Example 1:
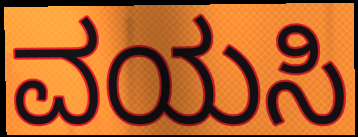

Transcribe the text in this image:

ವಯಸಿ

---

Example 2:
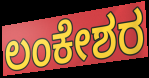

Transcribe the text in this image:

ಲಂಕೇಶರ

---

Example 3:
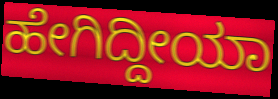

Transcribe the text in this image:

ಹೇಗಿದ್ದೀಯಾ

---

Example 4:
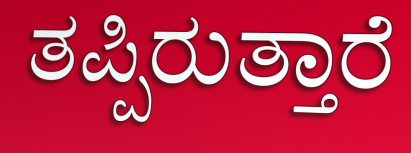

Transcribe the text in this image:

ತಪ್ಪಿರುತ್ತಾರೆ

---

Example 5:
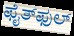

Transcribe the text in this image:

ಫೈತ್‌ಫುಲ್